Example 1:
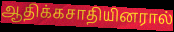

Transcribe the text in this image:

ஆதிக்கசாதியினரால்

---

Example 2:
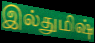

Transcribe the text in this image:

இல்துமிஷ்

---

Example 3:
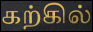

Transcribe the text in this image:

கற்கில்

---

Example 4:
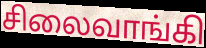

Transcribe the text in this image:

சிலைவாங்கி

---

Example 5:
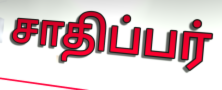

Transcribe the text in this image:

சாதிப்பர்